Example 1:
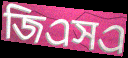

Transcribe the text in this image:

জিএসএ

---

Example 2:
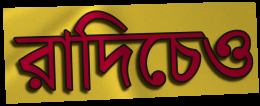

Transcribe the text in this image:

রাদিচেও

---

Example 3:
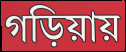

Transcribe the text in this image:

গড়িয়ায়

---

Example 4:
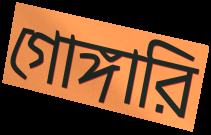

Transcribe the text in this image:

গোঙ্গারি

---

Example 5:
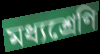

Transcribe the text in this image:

মধ্যশ্রেণি